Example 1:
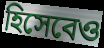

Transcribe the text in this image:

হিসেবেও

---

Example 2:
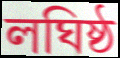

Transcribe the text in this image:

লঘিষ্ঠ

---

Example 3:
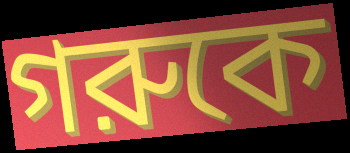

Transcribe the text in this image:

গরুকে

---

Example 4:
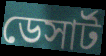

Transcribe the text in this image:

ডেসার্ট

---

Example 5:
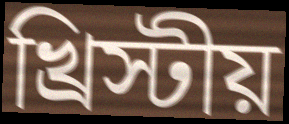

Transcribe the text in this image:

খ্রিস্টীয়